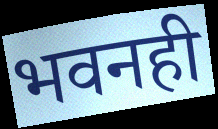
भवनही